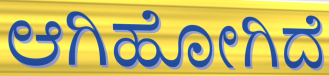
ಆಗಿಹೋಗಿದೆ